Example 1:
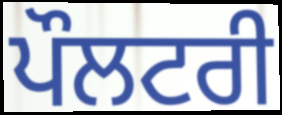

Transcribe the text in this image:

ਪੌਲਟਰੀ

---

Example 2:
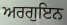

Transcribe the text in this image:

ਅਰਗੁਇਨ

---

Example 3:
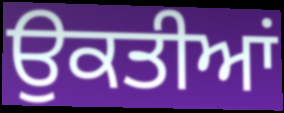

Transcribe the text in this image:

ਉਕਤੀਆਂ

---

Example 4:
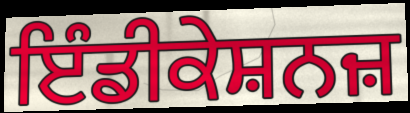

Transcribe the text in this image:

ਇੰਡੀਕੇਸ਼ਨਜ਼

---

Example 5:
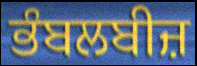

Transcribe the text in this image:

ਭੰਬਲਬੀਜ਼